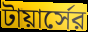
টায়ার্সের